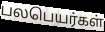
பலபெயர்கள்